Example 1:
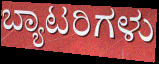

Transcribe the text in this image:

ಬ್ಯಾಟರಿಗಳು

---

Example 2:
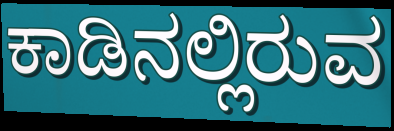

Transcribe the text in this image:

ಕಾಡಿನಲ್ಲಿರುವ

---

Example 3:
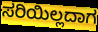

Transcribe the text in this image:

ಸರಿಯಿಲ್ಲದಾಗ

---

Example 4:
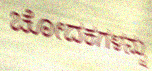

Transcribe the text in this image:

ಚೋದಕಗಳನ್ನು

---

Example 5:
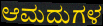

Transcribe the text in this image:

ಆಮದುಗಳ